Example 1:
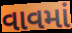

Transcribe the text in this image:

વાવમાં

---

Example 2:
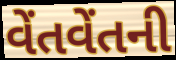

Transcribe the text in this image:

વેંતવેંતની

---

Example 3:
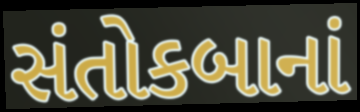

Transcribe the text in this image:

સંતોકબાનાં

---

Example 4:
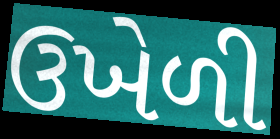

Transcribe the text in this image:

ઉખેળી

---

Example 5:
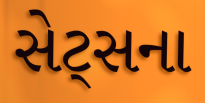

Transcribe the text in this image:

સેટ્સના